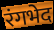
रंगभेद